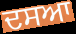
ਦਸਆ